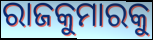
ରାଜକୁମାରକୁ